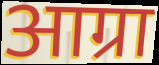
आग्रा